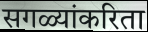
सगळ्यांकरिता